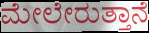
ಮೇಲೇರುತ್ತಾನೆ